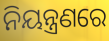
ନିୟନ୍ତ୍ରଣରେ